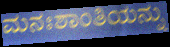
ಮನಃಶಾಂತಿಯನ್ನು